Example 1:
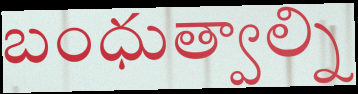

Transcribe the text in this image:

బంధుత్వాల్ని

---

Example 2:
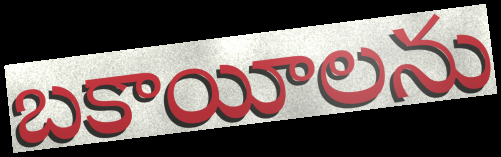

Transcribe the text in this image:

బకాయీలను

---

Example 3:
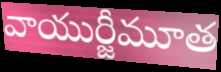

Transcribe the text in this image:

వాయుర్జీమూత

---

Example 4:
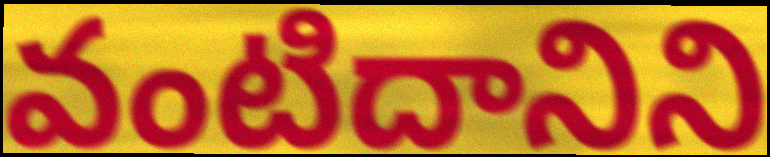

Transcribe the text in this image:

వంటిదానిని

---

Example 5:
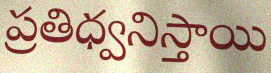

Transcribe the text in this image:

ప్రతిధ్వనిస్తాయి